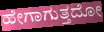
ಹೇಗಾಗುತ್ತದೋ